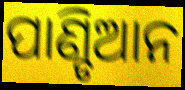
ପାଣ୍ଡିଆନ